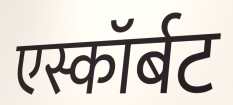
एस्कॉर्बट